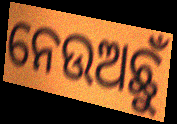
ନେଉଅଛୁଁ